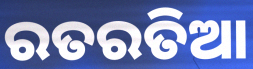
ରତରତିଆ